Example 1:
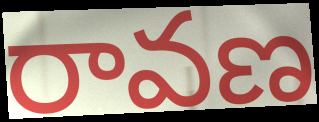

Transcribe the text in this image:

రావణ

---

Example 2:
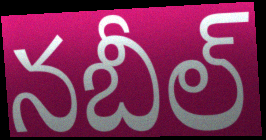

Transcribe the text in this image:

నబీల్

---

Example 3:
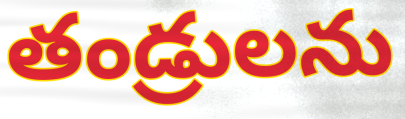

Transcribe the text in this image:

తండ్రులను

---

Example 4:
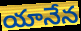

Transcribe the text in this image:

యానేన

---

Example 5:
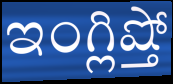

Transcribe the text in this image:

ఇంగ్లిష్తో